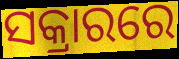
ସକ୍ରାରରେ